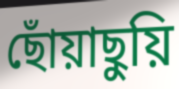
ছোঁয়াছুয়ি